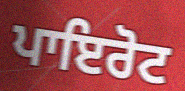
ਪਾਇਰੋਟ